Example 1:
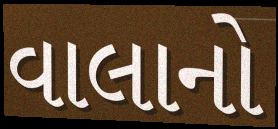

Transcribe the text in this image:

વાલાનો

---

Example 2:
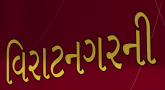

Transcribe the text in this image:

વિરાટનગરની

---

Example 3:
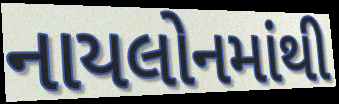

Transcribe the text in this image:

નાયલોનમાંથી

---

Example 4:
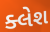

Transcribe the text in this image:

ક્લેશ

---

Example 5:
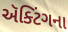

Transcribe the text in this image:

ઍક્ટિંગના